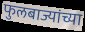
फुलबाज्यांच्या